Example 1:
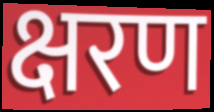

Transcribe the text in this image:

क्षरण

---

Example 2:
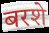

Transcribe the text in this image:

बरशे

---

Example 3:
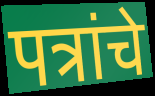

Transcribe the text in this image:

पत्रांचे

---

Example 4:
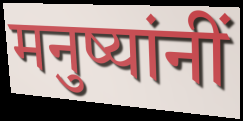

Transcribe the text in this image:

मनुष्यांनीं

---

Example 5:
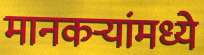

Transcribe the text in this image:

मानकऱ्यांमध्ये